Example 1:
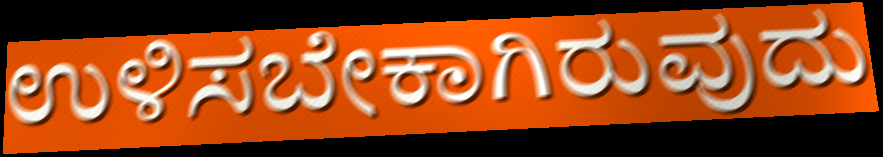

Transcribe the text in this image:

ಉಳಿಸಬೇಕಾಗಿರುವುದು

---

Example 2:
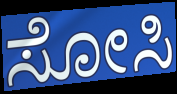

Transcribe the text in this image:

ಸೋಸಿ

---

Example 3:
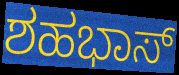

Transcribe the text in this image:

ಶಹಭಾಸ್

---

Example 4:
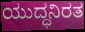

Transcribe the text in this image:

ಯುದ್ಧನಿರತ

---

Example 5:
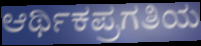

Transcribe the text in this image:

ಆರ್ಥಿಕಪ್ರಗತಿಯ